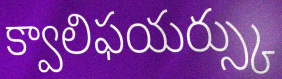
క్వాలిఫయర్స్కు